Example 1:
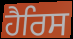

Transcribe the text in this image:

ਹੈਰਿਸ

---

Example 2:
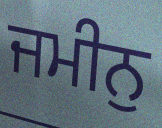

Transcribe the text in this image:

ਜਮੀਨੁ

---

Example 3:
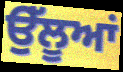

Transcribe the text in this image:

ਉੱਲੂਆਂ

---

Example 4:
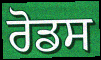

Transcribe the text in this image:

ਰੋਡਸ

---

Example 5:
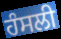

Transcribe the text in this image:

ਹੰਸਲੀ